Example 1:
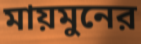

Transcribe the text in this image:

মায়মুনের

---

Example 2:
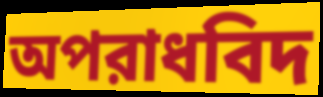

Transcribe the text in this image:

অপরাধবিদ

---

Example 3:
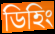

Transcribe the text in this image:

ডিহিং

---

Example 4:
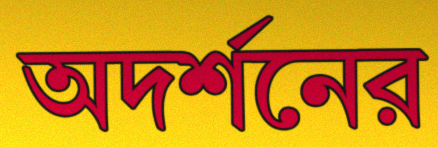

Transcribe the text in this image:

অদর্শনের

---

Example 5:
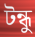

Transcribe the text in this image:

টন্ধু